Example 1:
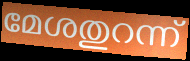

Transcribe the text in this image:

മേശതുറന്ന്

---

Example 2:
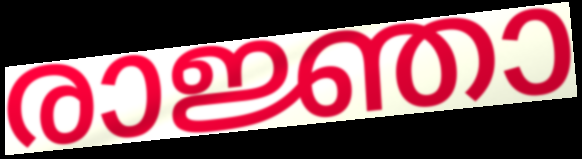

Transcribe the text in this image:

രാജ്ഞാ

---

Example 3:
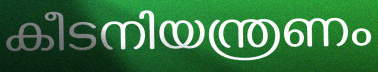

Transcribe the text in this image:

കീടനിയന്ത്രണം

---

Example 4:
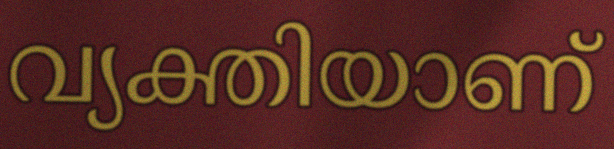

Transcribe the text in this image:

വ്യക്തിയാണ്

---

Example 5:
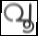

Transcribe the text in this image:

വൂ